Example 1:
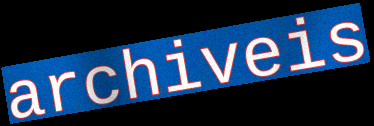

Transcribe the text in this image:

archiveis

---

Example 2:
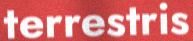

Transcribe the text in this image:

terrestris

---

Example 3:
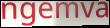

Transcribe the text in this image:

ngemva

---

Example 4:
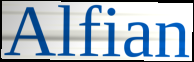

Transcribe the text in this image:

Alfian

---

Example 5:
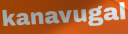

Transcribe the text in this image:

kanavugal